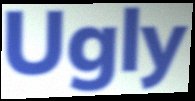
Ugly